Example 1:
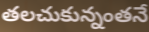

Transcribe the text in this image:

తలచుకున్నంతనే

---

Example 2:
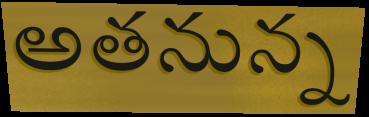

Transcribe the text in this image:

అతనున్న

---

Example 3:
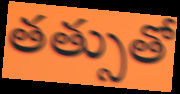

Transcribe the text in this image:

తత్సుతో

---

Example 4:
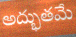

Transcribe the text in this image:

అద్భుతమే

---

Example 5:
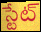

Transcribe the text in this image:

స్టేట్